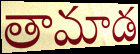
తామాడ